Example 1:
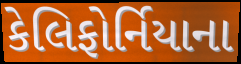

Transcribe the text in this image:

કેલિફોર્નિયાના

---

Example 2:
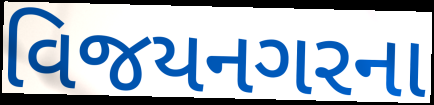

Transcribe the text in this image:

વિજયનગરના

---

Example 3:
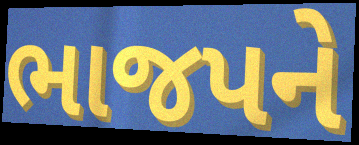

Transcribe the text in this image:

ભાજપને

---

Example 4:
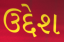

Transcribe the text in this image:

ઉદ્દેશ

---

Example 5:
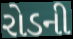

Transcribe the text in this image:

રોડની